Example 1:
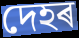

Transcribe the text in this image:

দেহৰ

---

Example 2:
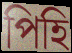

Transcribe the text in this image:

পিহি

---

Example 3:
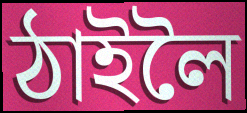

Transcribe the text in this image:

ঠাইলৈ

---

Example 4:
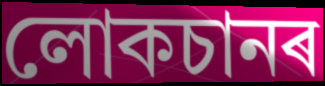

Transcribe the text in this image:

লোকচানৰ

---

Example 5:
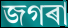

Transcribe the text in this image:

জগৰা